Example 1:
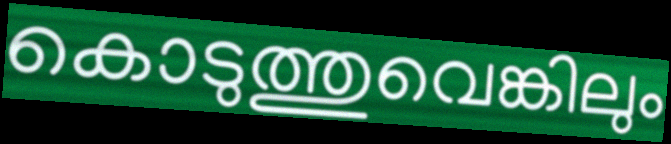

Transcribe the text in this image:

കൊടുത്തുവെങ്കിലും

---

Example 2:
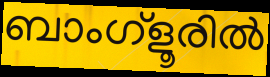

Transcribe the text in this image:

ബാംഗ്ളൂരിൽ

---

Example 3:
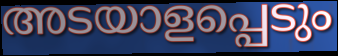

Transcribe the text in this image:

അടയാളപ്പെടും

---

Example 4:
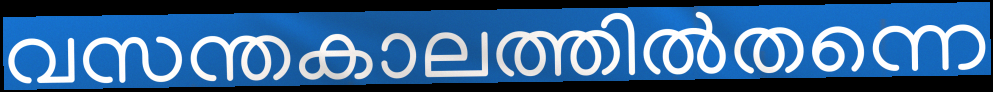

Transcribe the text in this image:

വസന്തകാലത്തിൽതന്നെ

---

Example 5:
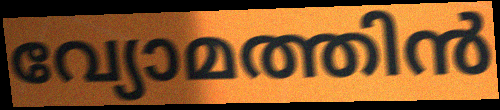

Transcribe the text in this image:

വ്യോമത്തിൻ